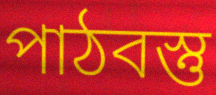
পাঠবস্তু